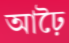
আঢ়ৈ